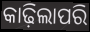
କାଢ଼ିଲାପରି